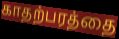
காதற்பரத்தை